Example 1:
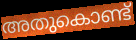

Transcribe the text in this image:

അതുകൊണ്ട്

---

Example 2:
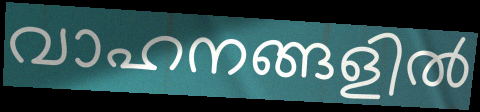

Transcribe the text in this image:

വാഹനങ്ങളിൽ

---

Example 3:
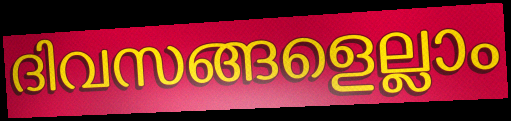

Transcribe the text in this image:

ദിവസങ്ങളെല്ലാം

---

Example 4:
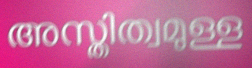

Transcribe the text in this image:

അസ്തിത്വമുള്ള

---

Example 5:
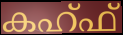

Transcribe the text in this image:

കഹ്ഫ്